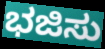
ಭಜಿಸು